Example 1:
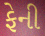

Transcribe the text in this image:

ફેની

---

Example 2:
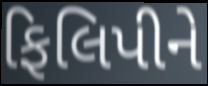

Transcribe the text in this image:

ફિલિપીને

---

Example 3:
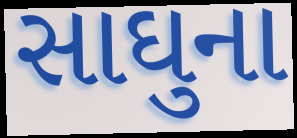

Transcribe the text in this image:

સાઘુના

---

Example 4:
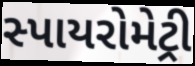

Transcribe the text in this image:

સ્પાયરોમેટ્રી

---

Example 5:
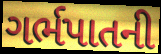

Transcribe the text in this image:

ગર્ભપાતની